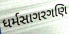
ધર્મસાગરગણિ